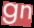
gn